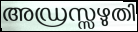
അഡ്രസ്സഴുതി